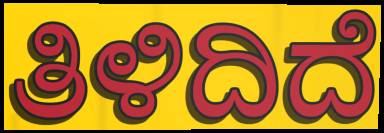
ತಿಳಿದಿದೆ